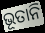
ଭୂତାନି